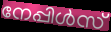
നേപ്പിൾസ്